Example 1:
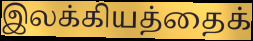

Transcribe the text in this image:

இலக்கியத்தைக்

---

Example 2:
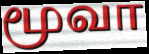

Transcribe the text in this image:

மூவா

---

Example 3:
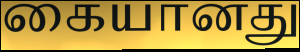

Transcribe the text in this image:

கையானது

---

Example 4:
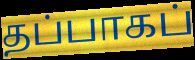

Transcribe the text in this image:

தப்பாகப்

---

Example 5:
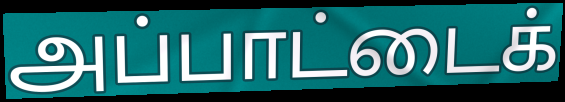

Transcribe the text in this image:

அப்பாட்டைக்